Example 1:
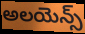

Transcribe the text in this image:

అలయెన్స్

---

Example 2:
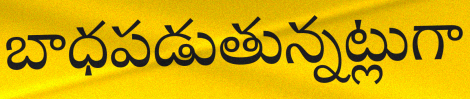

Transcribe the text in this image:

బాధపడుతున్నట్లుగా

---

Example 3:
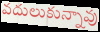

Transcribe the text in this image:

వదులుకున్నావు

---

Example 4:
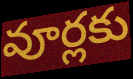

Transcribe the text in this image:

వూర్లకు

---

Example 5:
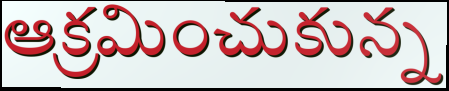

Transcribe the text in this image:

ఆక్రమించుకున్న